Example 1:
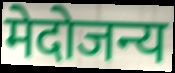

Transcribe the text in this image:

मेदोजन्य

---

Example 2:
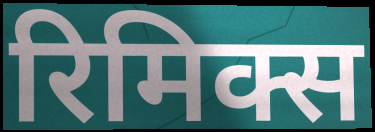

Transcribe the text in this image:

रिमिक्स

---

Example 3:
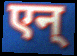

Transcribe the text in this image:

एन्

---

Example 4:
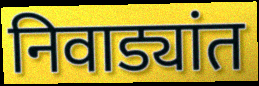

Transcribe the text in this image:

निवाड्यांत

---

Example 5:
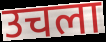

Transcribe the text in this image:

उचला